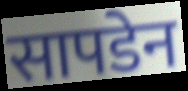
सापडेन